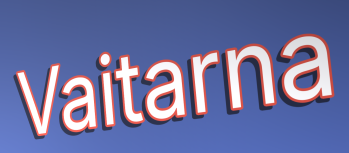
Vaitarna